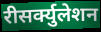
रीसर्क्युलेशन